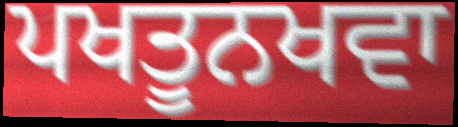
ਪਖਤੂਨਖਵਾ